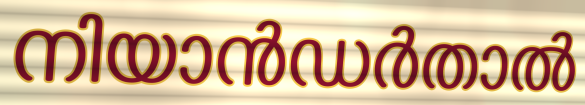
നിയാൻഡർതാൽ